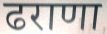
ढराणा